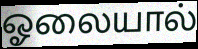
ஓலையால்